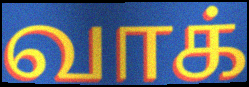
வாக்